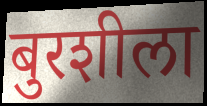
बुरशीला